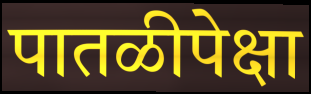
पातळीपेक्षा